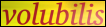
volubilis